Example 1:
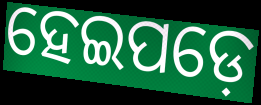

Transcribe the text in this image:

ହେଇପଡ଼େ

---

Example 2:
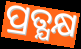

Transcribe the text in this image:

ପ୍ରତ୍ଯକ୍ଷ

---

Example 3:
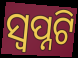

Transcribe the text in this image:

ସ୍ୱପ୍ନଟି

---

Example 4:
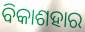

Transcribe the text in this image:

ବିକାଶହାର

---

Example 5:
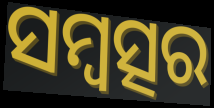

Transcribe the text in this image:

ସମ୍ବତ୍ସର